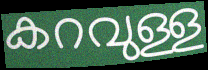
കറവുള്ള